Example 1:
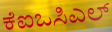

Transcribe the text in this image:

ಕೆಐಒಸಿಎಲ್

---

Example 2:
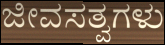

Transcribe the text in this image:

ಜೀವಸತ್ವಗಳು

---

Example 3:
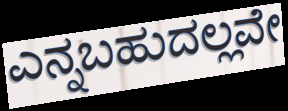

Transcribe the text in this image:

ಎನ್ನಬಹುದಲ್ಲವೇ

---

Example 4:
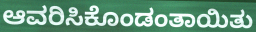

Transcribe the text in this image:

ಆವರಿಸಿಕೊಂಡಂತಾಯಿತು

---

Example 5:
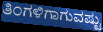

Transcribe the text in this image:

ತಿಂಗಳಿಗಾಗುವಷ್ಟು